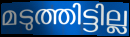
മടുത്തിട്ടില്ല